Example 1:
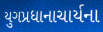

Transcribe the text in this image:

યુગપ્રધાનાચાર્યના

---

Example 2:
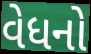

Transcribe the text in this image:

વેધનો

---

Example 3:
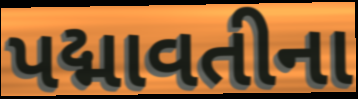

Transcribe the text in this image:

પદ્માવતીના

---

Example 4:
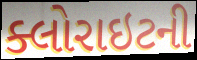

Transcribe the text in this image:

ક્લોરાઇટની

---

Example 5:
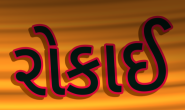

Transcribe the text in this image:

રોકાઈ